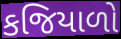
કજિયાળો